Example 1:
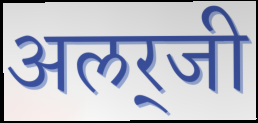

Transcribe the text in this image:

अलर्जी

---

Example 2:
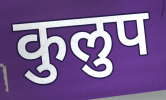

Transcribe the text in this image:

कुलुप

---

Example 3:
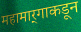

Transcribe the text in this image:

महामार्गाकडून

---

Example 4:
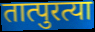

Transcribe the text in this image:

तात्पुरत्या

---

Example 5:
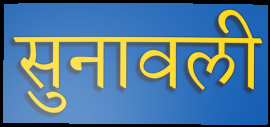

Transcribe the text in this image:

सुनावली